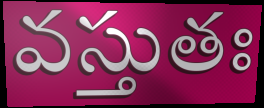
వస్తుతః